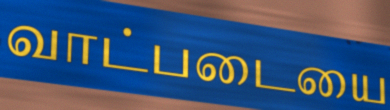
வாட்படையை